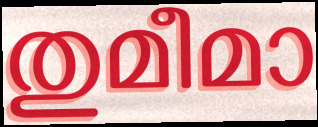
തുമീമാ